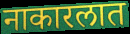
नाकारलात